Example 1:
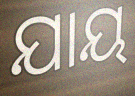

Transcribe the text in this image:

ଯାୟ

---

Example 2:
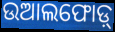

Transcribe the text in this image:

ଉଆଲଫୋଡ଼୍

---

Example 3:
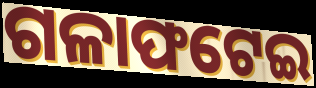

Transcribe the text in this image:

ଗଳାଫଟେଇ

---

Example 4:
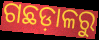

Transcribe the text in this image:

ଗଛଡ଼ାଳରୁ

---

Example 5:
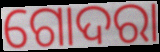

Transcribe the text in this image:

ଗୋଦରା